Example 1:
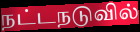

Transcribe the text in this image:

நட்டநடுவில்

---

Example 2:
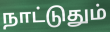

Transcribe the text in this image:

நாட்டுதும்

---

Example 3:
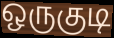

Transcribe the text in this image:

ஒருகுடி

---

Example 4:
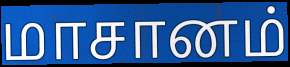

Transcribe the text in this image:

மாசானம்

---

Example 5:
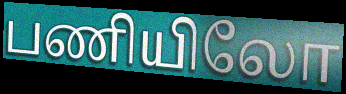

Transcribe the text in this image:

பணியிலோ